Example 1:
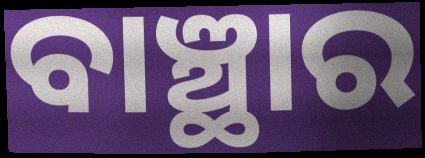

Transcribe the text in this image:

ବାଞ୍ଛାର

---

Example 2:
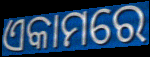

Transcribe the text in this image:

ଏକାମରେ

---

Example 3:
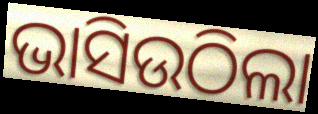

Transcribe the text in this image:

ଭାସିଉଠିଲା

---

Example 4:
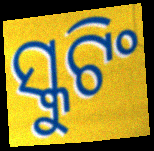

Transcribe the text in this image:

ସ୍କୁଟିଂ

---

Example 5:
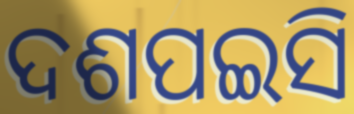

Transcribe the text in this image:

ଦଶପଇସି